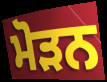
ਮੋੜਨ